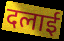
दलाई